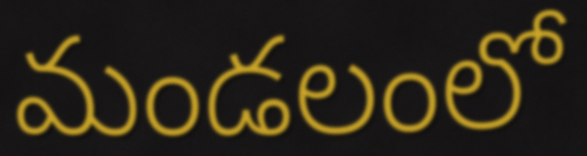
మండలంలో